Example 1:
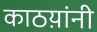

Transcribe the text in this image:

काठय़ांनी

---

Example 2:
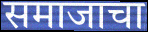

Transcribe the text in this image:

समाजाचा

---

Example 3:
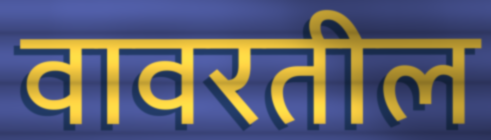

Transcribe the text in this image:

वावरतील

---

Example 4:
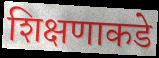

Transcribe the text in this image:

शिक्षणाकडे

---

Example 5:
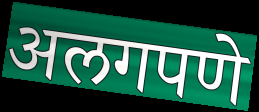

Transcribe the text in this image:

अलगपणे